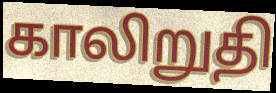
காலிறுதி